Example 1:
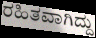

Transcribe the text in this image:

ರಹಿತವಾಗಿದ್ದು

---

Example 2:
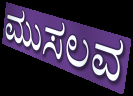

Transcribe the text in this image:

ಮುಸಲವ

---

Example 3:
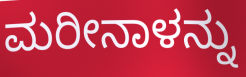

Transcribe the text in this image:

ಮರೀನಾಳನ್ನು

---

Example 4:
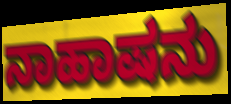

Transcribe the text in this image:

ನಾಹಾಷನು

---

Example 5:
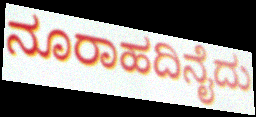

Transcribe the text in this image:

ನೂರಾಹದಿನೈದು